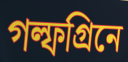
গল্ফগ্রিনে